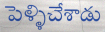
పెళ్ళిచేశాడు